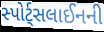
સ્પોર્ટ્સલાઈનની